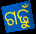
ଗଢୁଁ